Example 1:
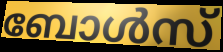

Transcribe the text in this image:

ബോൾസ്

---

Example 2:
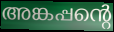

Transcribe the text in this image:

അങ്കപ്പന്റെ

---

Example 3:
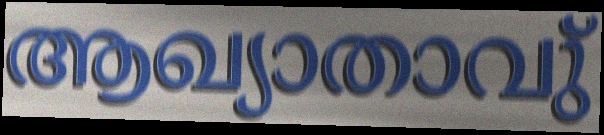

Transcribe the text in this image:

ആഖ്യാതാവു്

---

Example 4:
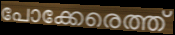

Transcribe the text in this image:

പോക്കേരെത്ത്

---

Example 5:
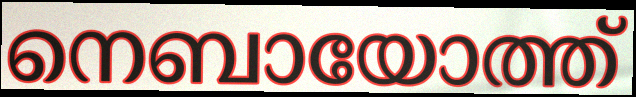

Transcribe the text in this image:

നെബായോത്ത്